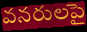
వనరులపై